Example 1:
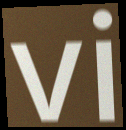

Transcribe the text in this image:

vi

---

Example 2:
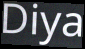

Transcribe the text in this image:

Diya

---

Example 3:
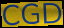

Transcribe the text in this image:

CGD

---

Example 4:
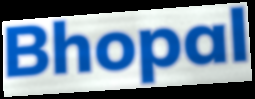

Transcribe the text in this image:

Bhopal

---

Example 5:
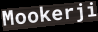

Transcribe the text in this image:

Mookerji